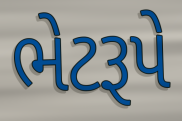
ભેટરૂપે